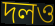
দলও